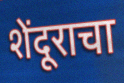
शेंदूराचा